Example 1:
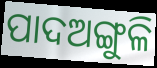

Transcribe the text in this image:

ପାଦଅଙ୍ଗୁଳି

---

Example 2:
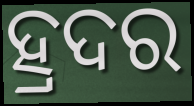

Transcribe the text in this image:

ହ୍ରଦର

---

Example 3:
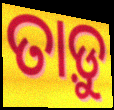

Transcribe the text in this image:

ତାଡ଼ୁ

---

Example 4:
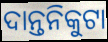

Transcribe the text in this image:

ଦାନ୍ତନିକୁଟା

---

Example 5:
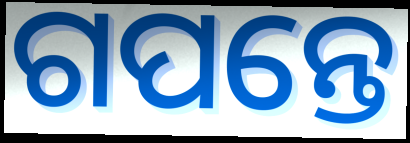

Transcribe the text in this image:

ଗପନ୍ତେ